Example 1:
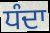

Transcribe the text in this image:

ਧੰਦਾ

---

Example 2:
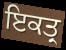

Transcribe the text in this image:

ਇਕਤ੍ਰ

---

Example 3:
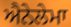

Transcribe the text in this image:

ਐਨੇਲੇਮਾ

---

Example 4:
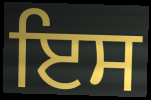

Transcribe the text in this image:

ਇਸ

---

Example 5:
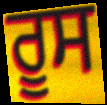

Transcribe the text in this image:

ਰੂਸ